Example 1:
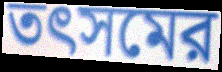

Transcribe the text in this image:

তৎসমের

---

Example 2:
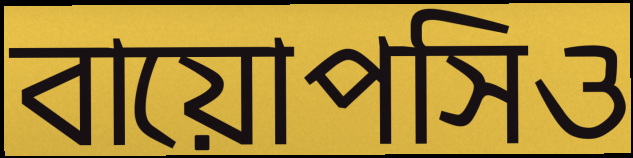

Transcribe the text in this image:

বায়োপসিও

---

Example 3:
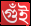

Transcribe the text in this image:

গুঁই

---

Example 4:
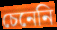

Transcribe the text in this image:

চেনেনি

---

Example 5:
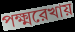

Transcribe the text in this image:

পক্ষ্মরেখায়